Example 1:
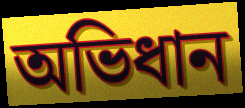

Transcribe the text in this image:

অভিধান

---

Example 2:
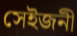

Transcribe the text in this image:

সেইজনী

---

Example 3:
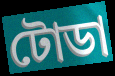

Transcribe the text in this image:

টোডা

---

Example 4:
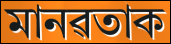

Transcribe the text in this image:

মানৱতাক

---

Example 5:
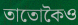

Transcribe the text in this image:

তাতোকৈও